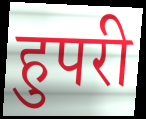
हुपरी